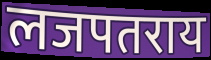
लजपतराय